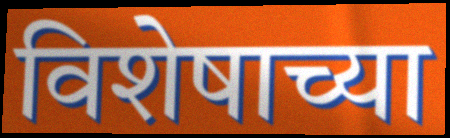
विशेषाच्या